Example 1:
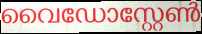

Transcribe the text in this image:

വൈഡോസ്റ്റേൺ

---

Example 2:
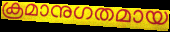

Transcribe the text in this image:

ക്രമാനുഗതമായ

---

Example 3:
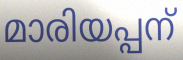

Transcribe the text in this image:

മാരിയപ്പന്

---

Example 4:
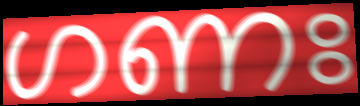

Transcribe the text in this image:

ഗണഃ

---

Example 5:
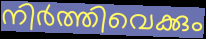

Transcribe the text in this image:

നിർത്തിവെക്കും